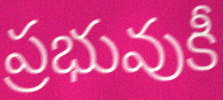
ప్రభువుకీ